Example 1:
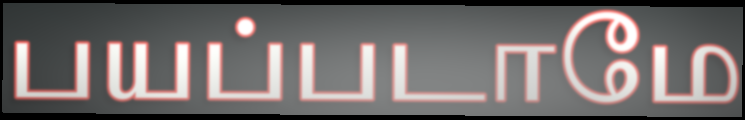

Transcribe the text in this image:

பயப்படாமே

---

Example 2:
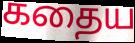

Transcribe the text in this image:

கதைய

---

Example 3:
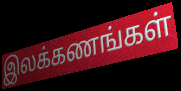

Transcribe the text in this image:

இலக்கணங்கள்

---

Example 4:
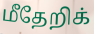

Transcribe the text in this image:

மீதேறிக்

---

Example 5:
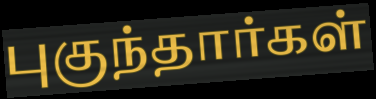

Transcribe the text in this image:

புகுந்தார்கள்